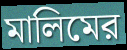
মালিমের